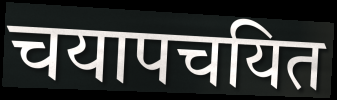
चयापचयित